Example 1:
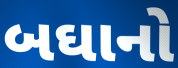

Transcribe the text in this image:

બઘાનો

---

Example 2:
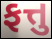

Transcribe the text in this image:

ફત્તુ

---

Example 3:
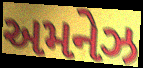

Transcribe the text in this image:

અમનેઝ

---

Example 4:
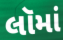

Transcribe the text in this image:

લૉમાં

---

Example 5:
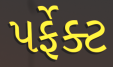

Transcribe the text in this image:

પર્ફેક્ટ